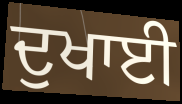
ਦੁਖਾਈ